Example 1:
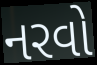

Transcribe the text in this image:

નરવો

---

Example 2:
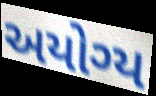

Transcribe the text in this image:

અયોગ્ય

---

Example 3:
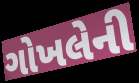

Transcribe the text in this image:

ગોખલેની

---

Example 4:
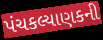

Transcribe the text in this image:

પંચકલ્યાણકની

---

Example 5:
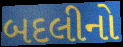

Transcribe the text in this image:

બદલીનો